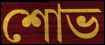
শোভ